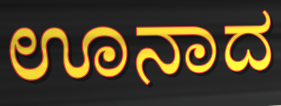
ಊನಾದ